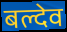
बल्देव